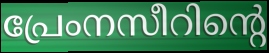
പ്രേംനസീറിന്റെ